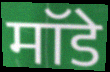
मॉडे